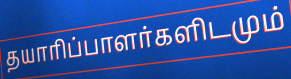
தயாரிப்பாளர்களிடமும்